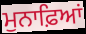
ਮੁਨਾਫ਼ਿਆਂ